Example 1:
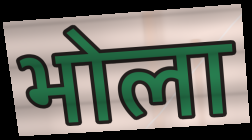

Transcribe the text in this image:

भोला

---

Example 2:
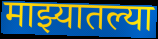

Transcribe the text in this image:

माझ्यातल्या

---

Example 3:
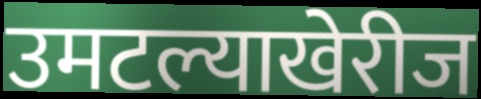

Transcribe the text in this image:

उमटल्याखेरीज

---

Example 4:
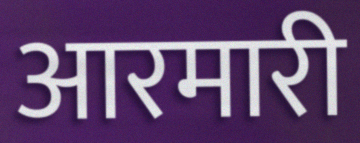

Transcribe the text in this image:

आरमारी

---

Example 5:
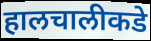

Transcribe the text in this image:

हालचालीकडे